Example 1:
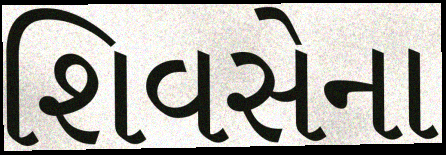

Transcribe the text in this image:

શિવસેના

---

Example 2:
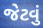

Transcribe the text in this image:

જેટવું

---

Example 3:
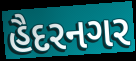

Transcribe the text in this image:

હૈદરનગર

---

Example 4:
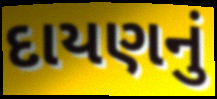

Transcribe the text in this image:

દાયણનું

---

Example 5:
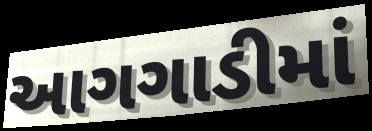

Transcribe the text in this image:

આગગાડીમાં